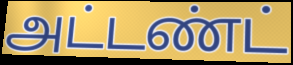
அட்டண்ட்